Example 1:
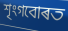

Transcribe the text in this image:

শৃংগবোৰত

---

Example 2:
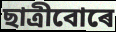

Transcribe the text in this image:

ছাত্ৰীবোৰে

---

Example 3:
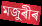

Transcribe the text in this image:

মজুৰীৰ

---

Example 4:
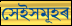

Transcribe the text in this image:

সেইসমূহৰ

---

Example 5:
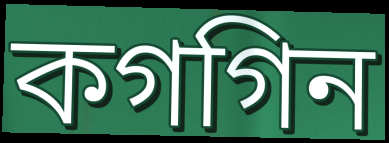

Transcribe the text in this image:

কগগিন